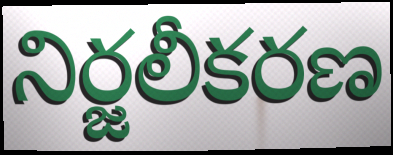
నిర్జలీకరణ